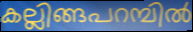
കല്ലിങ്ങപറമ്പിൽ